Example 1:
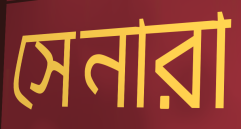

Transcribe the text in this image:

সেনারা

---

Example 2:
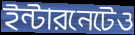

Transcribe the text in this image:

ইন্টারনেটেও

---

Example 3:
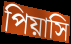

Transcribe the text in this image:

পিয়াসি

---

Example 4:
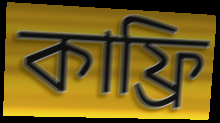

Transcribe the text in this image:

কাফ্রি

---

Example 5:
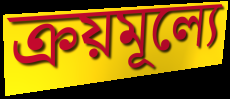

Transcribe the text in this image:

ক্রয়মূল্যে